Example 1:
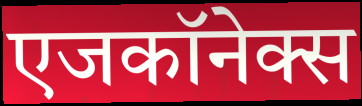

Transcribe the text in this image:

एजकॉनेक्स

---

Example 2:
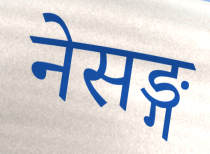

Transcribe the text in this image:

नेसङ्ग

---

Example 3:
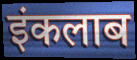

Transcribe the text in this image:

इंकलाब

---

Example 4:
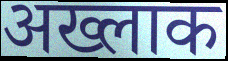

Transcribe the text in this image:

अख्लाक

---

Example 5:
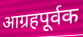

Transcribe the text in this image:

आग्रहपूर्वक